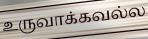
உருவாக்கவல்ல